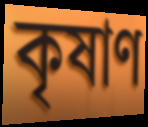
কৃষাণ